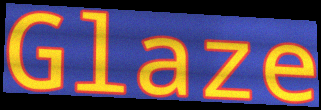
Glaze